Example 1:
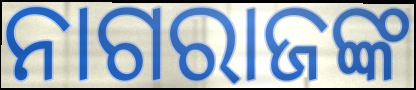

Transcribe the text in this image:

ନାଗରାଜଙ୍କ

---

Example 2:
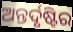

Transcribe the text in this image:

ଅନ୍ତର୍ଦୃଷ୍ଟିର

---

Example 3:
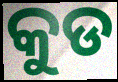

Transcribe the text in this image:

କୁଡ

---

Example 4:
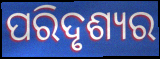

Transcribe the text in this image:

ପରିଦୃଶ୍ୟର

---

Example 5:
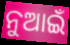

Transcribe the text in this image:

ନୁଆଇଁ